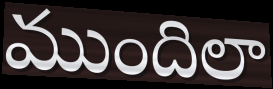
ముందిలా